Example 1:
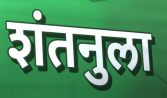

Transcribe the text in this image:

शंतनुला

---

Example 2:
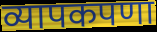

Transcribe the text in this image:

व्यापकपणा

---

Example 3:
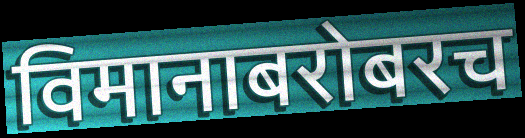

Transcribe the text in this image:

विमानाबरोबरच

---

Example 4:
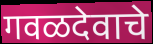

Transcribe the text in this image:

गवळदेवाचे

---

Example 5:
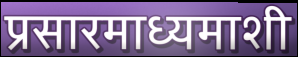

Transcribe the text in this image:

प्रसारमाध्यमाशी